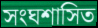
সংঘশাসিত